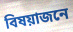
বিষয়াজনে